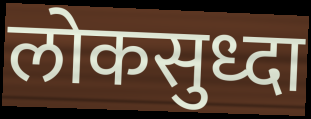
लोकसुध्दा